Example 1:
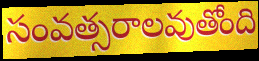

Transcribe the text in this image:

సంవత్సరాలవుతోంది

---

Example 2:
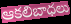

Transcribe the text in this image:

ఆకలిబాధలు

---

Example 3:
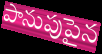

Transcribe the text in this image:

పానుపుపైన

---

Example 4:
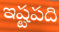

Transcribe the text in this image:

ఇష్టపది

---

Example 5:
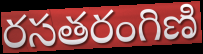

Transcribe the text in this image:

రసతరంగిణి